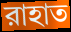
রাহাত